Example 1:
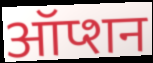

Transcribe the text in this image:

ऑप्‍शन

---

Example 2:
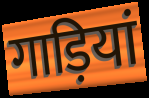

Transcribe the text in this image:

गाड़ियां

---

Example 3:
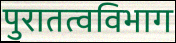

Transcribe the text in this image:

पुरातत्वविभाग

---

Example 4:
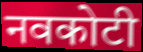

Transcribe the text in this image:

नवकोटी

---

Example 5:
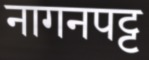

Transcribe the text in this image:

नागनपट्ट